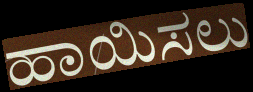
ಹಾಯಿಸಲು